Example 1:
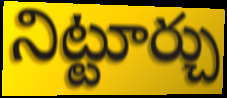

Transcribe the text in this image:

నిట్టూర్చు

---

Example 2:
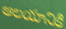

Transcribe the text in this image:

ఆలయానికి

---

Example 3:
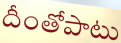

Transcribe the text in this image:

దీంతోపాటు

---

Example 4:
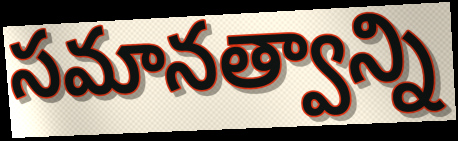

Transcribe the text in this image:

సమానత్వాన్ని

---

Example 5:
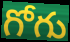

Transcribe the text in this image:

గోగు